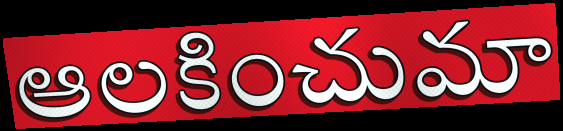
ఆలకించుమా